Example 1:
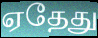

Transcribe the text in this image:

ஏதேது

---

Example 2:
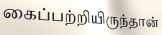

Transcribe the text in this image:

கைப்பற்றியிருந்தான்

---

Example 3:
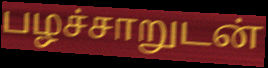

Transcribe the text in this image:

பழச்சாறுடன்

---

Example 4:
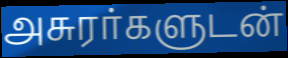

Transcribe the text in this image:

அசுரர்களுடன்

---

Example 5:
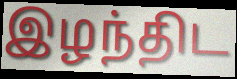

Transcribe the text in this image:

இழந்திட